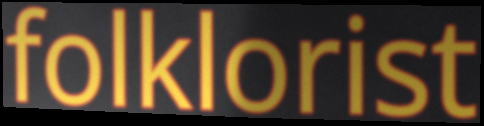
folklorist